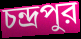
চন্দ্রপুর